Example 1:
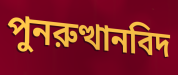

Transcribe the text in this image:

পুনরুত্থানবিদ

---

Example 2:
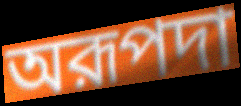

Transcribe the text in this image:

অরূপদা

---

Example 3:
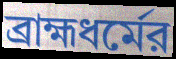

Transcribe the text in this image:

ব্রাহ্মধর্মের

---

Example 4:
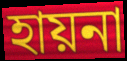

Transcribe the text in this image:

হায়না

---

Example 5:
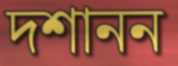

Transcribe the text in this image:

দশানন